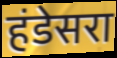
हंडेसरा